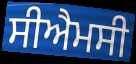
ਸੀਐਮਸੀ